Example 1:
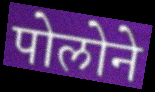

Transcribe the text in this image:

पोलोने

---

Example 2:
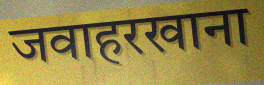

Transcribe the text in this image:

जवाहरखाना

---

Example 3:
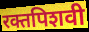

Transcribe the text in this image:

रक्तपिशवी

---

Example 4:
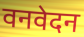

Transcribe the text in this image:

वनवेदन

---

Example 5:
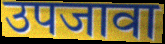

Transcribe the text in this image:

उपजावा